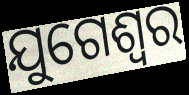
ଯୁଗେଶ୍ଵର